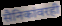
सैनिकांवरही